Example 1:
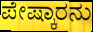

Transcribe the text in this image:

ಪೇಷ್ಕಾರನು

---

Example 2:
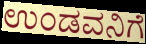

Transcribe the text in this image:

ಉಂಡವನಿಗೆ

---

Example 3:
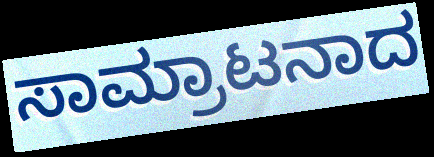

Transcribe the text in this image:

ಸಾಮ್ರಾಟನಾದ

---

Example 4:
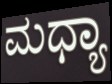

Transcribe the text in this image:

ಮಧ್ಯಾ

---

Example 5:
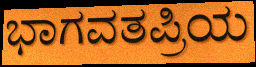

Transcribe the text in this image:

ಭಾಗವತಪ್ರಿಯ